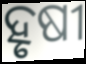
ହୃଷୀ